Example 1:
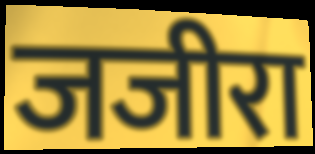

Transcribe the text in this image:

जजीरा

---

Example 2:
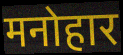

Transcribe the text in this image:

मनोहार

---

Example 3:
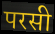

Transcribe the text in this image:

परसी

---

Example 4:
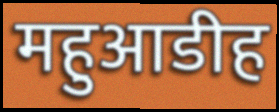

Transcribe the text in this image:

महुआडीह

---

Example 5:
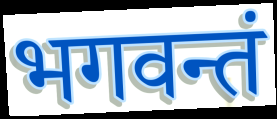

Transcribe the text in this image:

भगवन्तं